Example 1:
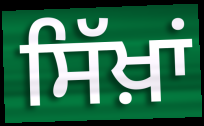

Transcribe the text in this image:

ਸਿੱਖ਼ਾਂ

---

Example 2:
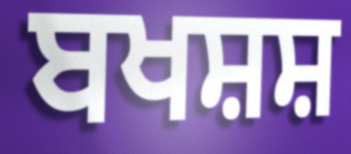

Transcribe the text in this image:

ਬਖਸ਼ਸ਼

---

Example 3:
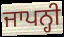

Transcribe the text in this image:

ਜਾਪਨ੍ਹੀ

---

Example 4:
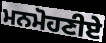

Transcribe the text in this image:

ਮਨਮੋਹਣੀਏ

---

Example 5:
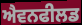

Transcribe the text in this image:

ਐਵਨਫੀਲਡ